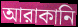
আরাকানি